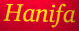
Hanifa